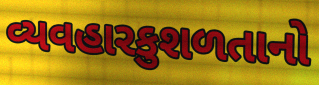
વ્યવહારકુશળતાનો